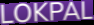
LOKPAL